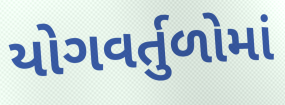
યોગવર્તુળોમાં